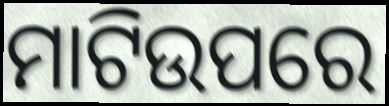
ମାଟିଉପରେ